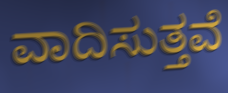
ವಾದಿಸುತ್ತವೆ